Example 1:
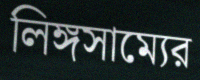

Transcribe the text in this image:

লিঙ্গসাম্যের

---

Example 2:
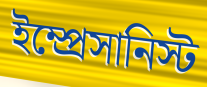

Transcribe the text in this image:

ইম্প্রেসানিস্ট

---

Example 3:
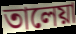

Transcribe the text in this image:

তালেয়া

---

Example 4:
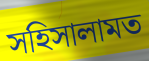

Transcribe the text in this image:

সহিসালামত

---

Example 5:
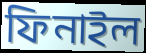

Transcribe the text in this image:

ফিনাইল